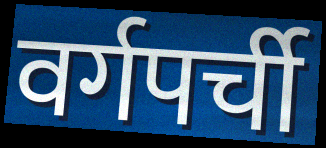
वर्गपर्ची